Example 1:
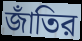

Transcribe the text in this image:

জাঁতির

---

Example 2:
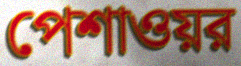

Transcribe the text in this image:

পেশাওয়র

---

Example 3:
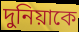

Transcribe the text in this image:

দুনিয়াকে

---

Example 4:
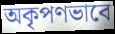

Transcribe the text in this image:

অকৃপণভাবে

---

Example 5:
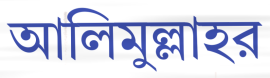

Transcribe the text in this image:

আলিমুল্লাহর